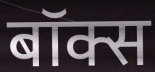
बॉक्स